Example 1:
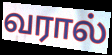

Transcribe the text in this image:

வரால்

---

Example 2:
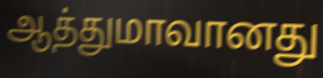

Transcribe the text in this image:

ஆத்துமாவானது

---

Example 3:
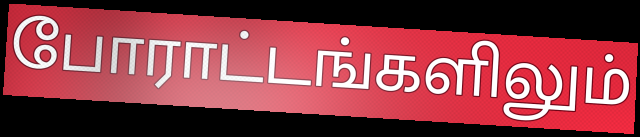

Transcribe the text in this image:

போராட்டங்களிலும்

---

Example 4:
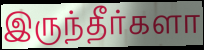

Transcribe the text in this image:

இருந்தீர்களா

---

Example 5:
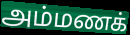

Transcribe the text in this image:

அம்மணக்